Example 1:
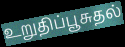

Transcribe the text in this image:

உறுதிப்பூசுதல்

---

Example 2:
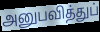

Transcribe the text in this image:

அனுபவித்துப்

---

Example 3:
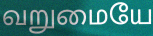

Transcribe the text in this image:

வறுமையே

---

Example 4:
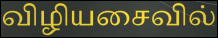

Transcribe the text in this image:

விழியசைவில்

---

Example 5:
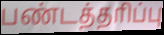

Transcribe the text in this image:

பண்டத்தரிப்பு